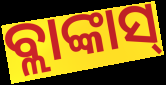
ବ୍ଲାଙ୍କାସ୍